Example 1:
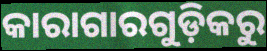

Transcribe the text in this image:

କାରାଗାରଗୁଡ଼ିକରୁ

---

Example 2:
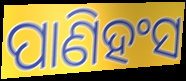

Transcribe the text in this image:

ପାଣିହଂସ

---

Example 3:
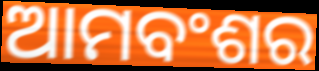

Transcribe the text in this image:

ଆମବଂଶର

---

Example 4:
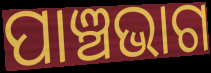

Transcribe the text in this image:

ପାଞ୍ଚଭାଗ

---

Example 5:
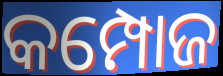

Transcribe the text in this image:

କମ୍ପୋଜ